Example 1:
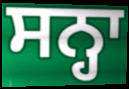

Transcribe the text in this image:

ਸਨ੍ਹਾ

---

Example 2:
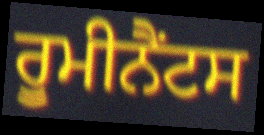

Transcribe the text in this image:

ਰੂਮੀਨੈਂਟਸ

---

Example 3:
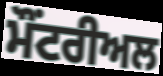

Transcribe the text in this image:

ਮੌਂਟਰੀਅਲ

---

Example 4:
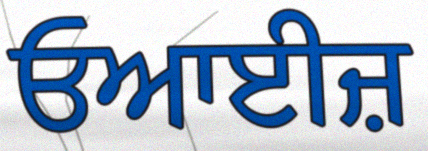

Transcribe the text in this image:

ਓਆਈਜ਼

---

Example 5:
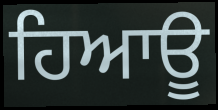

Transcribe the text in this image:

ਹਿਆਊ